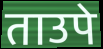
ताउपे